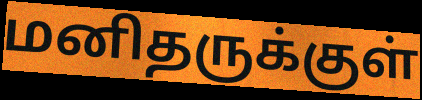
மனிதருக்குள்